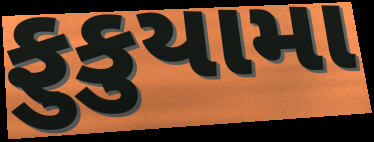
ફુકુયામા